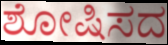
ಶೋಷಿಸದ